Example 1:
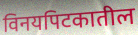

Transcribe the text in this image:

विनयपिटकातील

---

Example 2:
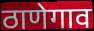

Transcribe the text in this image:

ठाणेगाव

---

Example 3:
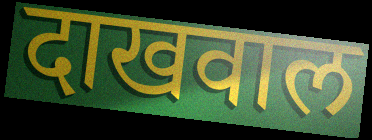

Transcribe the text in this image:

दाखवाल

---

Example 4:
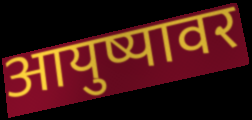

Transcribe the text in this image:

आयुष्यावर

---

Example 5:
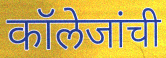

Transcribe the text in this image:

कॉलेजांची